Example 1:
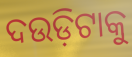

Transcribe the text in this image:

ଦଉଡ଼ିଟାକୁ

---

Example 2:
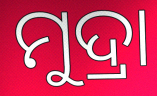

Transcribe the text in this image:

ମୁଦ୍ରା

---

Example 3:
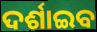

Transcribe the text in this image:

ଦର୍ଶାଇବ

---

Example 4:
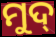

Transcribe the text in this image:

ମୁଦ୍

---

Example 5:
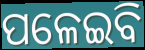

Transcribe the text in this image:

ପଳେଇବି